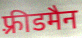
फ़्रीडमैन